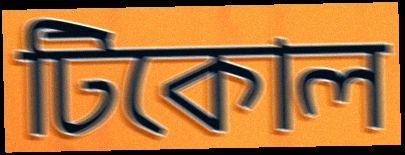
টিকোল